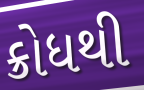
ક્રોધથી